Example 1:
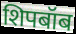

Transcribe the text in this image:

शिपबॉब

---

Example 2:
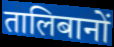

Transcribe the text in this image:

तालिबानों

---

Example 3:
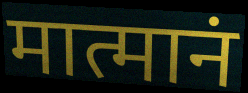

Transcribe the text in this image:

मात्मानं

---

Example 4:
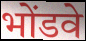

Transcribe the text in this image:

भोंडवे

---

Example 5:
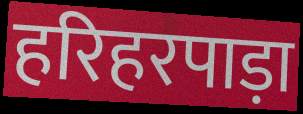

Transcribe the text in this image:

हरिहरपाड़ा